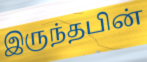
இருந்தபின்